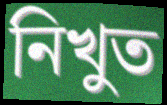
নিখুত